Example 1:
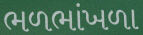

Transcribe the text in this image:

ભળભાંખળા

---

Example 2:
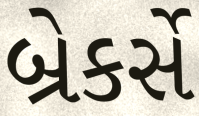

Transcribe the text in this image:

બ્રેકર્સે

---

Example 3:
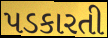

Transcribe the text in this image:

પડકારતી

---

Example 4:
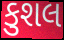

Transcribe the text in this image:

કુશલ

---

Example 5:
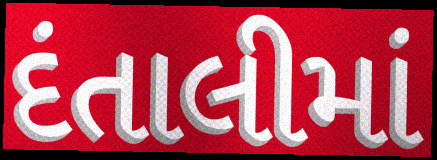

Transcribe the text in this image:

દંતાલીમાં